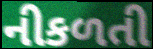
નીકળતી